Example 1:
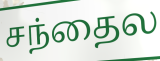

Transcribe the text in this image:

சந்தைல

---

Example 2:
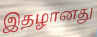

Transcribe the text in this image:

இதழானது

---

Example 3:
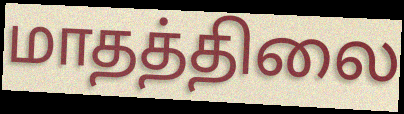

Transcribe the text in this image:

மாதத்திலை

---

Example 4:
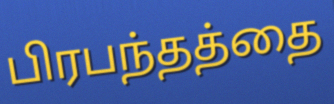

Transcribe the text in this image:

பிரபந்தத்தை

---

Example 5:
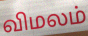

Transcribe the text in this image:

விமலம்